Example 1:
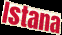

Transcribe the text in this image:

Istana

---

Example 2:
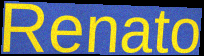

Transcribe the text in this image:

Renato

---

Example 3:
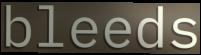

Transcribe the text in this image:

bleeds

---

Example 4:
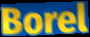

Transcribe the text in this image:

Borel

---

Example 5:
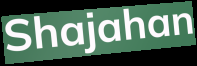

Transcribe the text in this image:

Shajahan